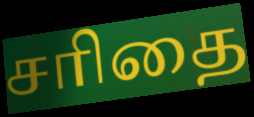
சரிதை